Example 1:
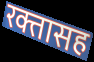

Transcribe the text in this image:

रक्तासह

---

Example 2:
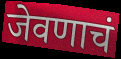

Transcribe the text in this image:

जेवणाचं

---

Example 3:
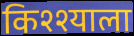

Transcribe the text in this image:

किश्श्याला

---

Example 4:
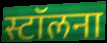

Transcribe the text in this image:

स्टॉलना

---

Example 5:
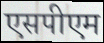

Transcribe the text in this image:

एसपीएम